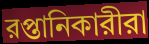
রপ্তানিকারীরা